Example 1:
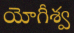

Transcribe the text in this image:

యోగీశ్వ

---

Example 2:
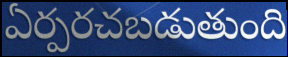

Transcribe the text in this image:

ఏర్పరచబడుతుంది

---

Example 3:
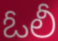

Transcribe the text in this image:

ఓలీ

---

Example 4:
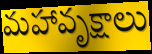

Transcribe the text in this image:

మహావృక్షాలు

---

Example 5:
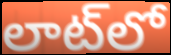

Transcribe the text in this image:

లాట్‌లో